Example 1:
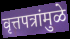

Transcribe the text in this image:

वृत्तपत्रांमुळे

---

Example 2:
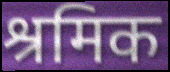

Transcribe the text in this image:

श्रमिक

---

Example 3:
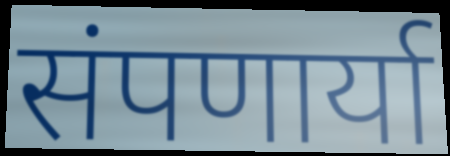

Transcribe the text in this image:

संपणार्या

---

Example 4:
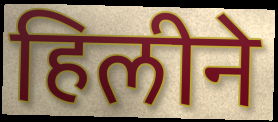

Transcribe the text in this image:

हिलीने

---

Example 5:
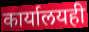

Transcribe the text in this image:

कार्यालयही